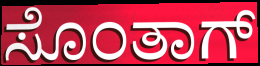
ಸೊಂತಾಗ್